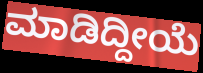
ಮಾಡಿದ್ದೀಯೆ